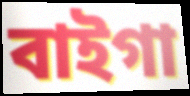
বাইগা